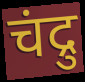
चंद्रु